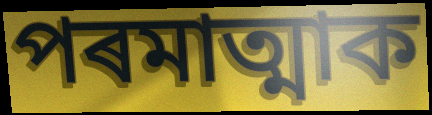
পৰমাত্মাক